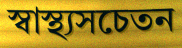
স্বাস্থ্যসচেতন